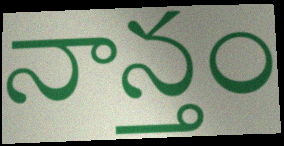
నాన్తం